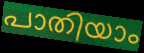
പാതിയാം